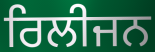
ਰਿਲੀਜਨ